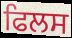
ਫਿਲਸ